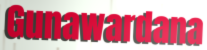
Gunawardana